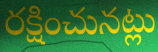
రక్షించునట్లు